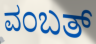
ವಂಬತ್